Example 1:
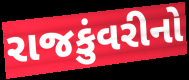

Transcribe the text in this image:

રાજકુંવરીનો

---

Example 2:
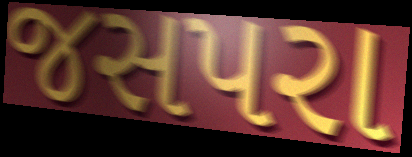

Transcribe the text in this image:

જસપરા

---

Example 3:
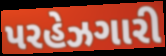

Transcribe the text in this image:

પરહેઝગારી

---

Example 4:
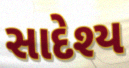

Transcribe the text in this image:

સાદેશ્ય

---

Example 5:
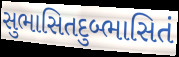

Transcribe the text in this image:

સુભાસિતદુબ્ભાસિતં